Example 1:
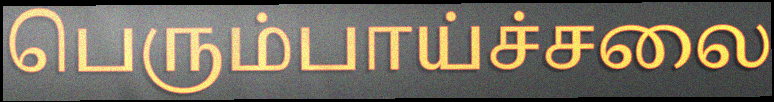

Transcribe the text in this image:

பெரும்பாய்ச்சலை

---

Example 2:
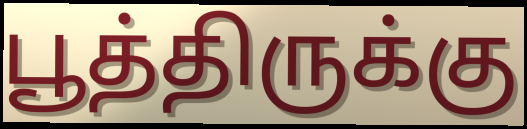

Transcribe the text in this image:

பூத்திருக்கு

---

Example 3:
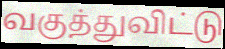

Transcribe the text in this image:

வகுத்துவிட்டு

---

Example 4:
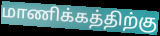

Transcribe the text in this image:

மாணிக்கத்திற்கு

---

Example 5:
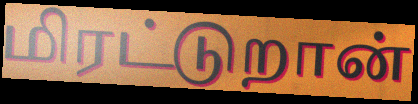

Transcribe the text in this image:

மிரட்டுறான்